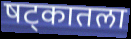
षट्कातला